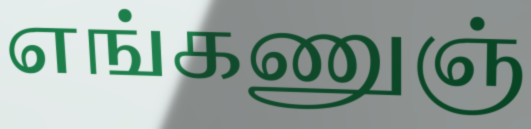
எங்கணுஞ்